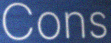
Cons